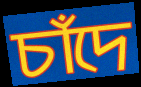
চাঁদে